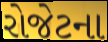
રોજેટના